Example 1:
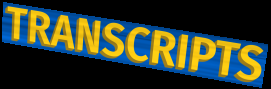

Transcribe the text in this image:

TRANSCRIPTS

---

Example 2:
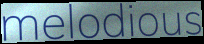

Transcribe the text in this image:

melodious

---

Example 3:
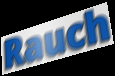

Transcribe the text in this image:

Rauch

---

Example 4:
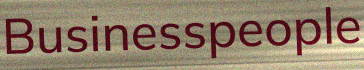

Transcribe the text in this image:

Businesspeople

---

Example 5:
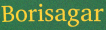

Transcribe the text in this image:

Borisagar